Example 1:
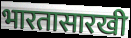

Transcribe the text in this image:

भारतासारखी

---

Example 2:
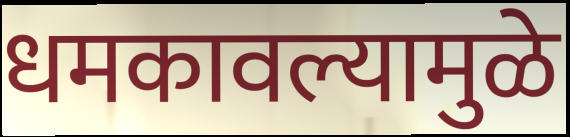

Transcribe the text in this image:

धमकावल्यामुळे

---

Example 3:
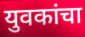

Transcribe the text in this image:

युवकांचा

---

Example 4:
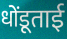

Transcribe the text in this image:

धोंडूताई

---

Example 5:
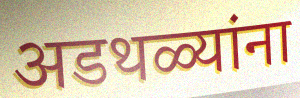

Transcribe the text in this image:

अडथळ्यांना